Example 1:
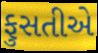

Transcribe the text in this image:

ફુસતીએ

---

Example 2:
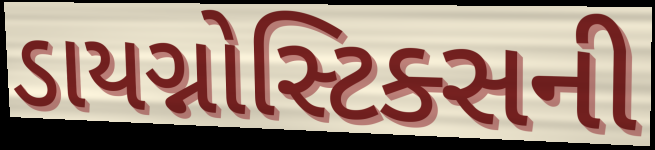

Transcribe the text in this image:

ડાયગ્નોસ્ટિક્સની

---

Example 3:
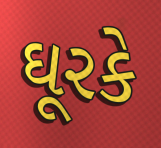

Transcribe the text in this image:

ઘૂરકે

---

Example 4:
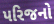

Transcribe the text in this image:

પરિજનો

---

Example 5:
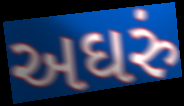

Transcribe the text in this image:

અઘરું